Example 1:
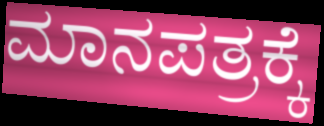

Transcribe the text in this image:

ಮಾನಪತ್ರಕ್ಕೆ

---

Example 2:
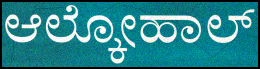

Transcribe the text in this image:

ಆಲ್ಕೋಹಾಲ್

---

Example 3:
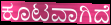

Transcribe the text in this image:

ಕೂಟವಾಗಿದೆ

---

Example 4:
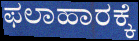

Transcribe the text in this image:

ಫಲಾಹಾರಕ್ಕೆ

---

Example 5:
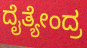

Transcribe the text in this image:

ದೈತ್ಯೇಂದ್ರ